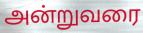
அன்றுவரை